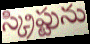
స్క్రిప్టును